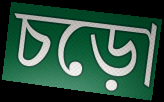
চড়ো